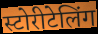
स्टोरीटेलिंग